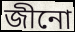
জীনো